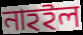
নাহইল